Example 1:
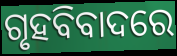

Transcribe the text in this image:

ଗୃହବିବାଦରେ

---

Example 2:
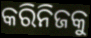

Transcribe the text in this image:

କରିନିଜକୁ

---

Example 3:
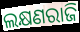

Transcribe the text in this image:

ଲକ୍ଷଣରାଜି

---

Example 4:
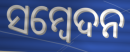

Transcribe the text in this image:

ସମ୍ଵେଦନ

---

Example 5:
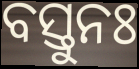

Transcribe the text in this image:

ବସ୍ତୁନଃ